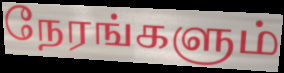
நேரங்களும்